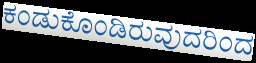
ಕಂಡುಕೊಂಡಿರುವುದರಿಂದ